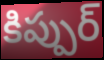
కిప్పుర్